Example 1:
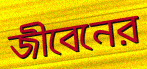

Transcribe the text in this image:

জীবেনের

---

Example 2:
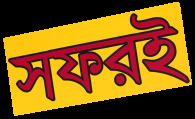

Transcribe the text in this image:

সফরই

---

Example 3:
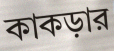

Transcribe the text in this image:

কাকড়ার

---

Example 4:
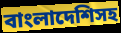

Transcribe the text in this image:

বাংলাদেশিসহ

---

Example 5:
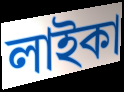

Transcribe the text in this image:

লাইকা